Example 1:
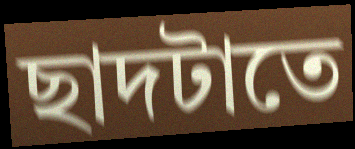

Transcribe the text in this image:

ছাদটাতে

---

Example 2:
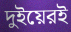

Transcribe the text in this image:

দুইয়েরই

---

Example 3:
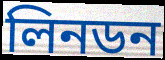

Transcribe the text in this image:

লিনডন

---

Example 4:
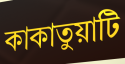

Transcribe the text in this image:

কাকাতুয়াটি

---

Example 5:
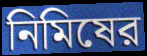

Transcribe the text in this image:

নিমিষের